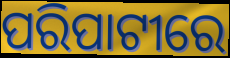
ପରିପାଟୀରେ